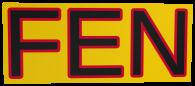
FEN